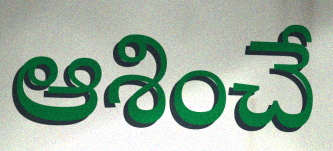
ఆశించే